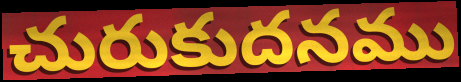
చురుకుదనము